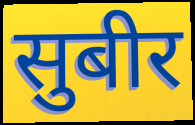
सुबीर